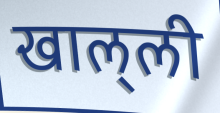
खाल्ली